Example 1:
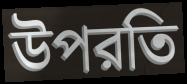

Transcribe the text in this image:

উপরতি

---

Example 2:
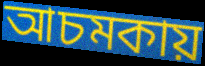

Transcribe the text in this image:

আচমকায়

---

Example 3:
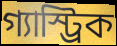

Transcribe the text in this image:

গ্যাস্ট্রিক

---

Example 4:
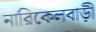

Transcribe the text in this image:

নারিকেলবাড়ী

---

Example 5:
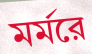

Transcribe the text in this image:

মর্মরে